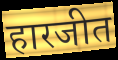
हारजीत